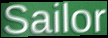
Sailor